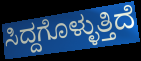
ಸಿದ್ದಗೊಳ್ಳುತ್ತಿದೆ